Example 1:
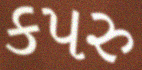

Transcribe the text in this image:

કપરુ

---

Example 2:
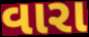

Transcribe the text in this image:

વારા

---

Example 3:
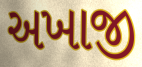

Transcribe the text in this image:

અખાજી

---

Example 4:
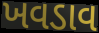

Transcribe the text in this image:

ખવડાવ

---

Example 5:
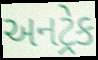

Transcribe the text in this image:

અનટ્રેક